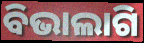
ବିଭାଲାଗି